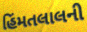
હિંમતલાલની